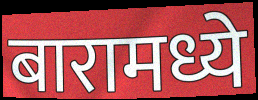
बारामध्ये